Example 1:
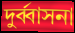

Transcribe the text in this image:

দুর্ব্বাসনা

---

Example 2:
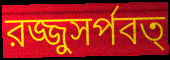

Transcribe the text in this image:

রজ্জুসর্পবত্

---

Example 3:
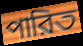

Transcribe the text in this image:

পারিত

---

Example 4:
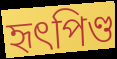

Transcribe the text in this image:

হৃৎপিণ্ড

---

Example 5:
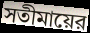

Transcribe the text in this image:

সতীমায়ের